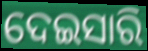
ଦେଇସାରି